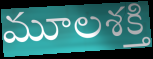
మూలశక్తి